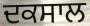
ਦਕਸਾਲ